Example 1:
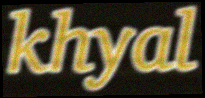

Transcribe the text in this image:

khyal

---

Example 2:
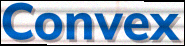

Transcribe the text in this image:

Convex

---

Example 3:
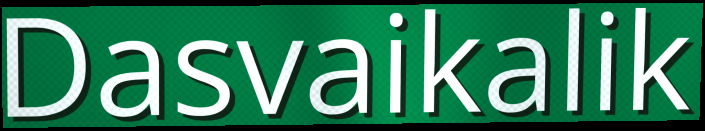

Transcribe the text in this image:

Dasvaikalik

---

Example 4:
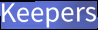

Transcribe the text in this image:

Keepers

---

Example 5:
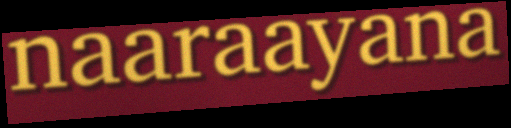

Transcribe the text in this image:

naaraayana